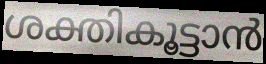
ശക്തികൂട്ടാൻ